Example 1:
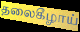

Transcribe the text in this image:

தலைகீழாய்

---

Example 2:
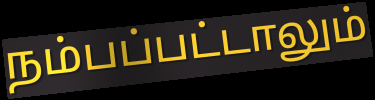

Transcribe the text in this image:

நம்பப்பட்டாலும்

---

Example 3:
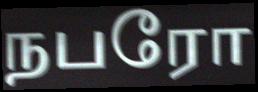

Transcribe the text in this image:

நபரோ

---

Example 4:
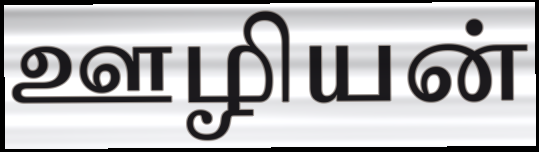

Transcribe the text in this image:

ஊழியன்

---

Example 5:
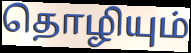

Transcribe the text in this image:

தொழியும்